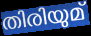
തിരിയുമ്